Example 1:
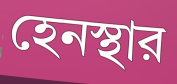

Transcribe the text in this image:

হেনস্থার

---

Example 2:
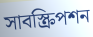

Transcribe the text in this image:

সাবস্ক্রিপশন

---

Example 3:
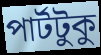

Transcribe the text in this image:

পার্টটুকু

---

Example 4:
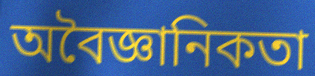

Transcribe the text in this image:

অবৈজ্ঞানিকতা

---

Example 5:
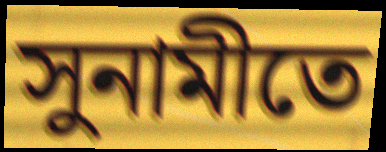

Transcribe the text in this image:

সুনামীতে